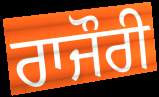
ਰਾਜੌਰੀ